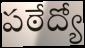
పఠేద్యో